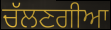
ਚੱਲਣਗੀਆ